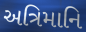
અત્રિમાનિ